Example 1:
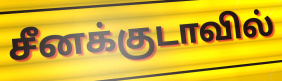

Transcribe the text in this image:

சீனக்குடாவில்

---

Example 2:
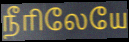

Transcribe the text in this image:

நீரிலேயே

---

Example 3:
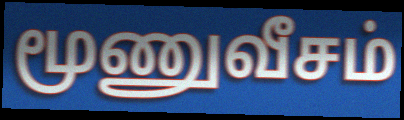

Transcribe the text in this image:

மூணுவீசம்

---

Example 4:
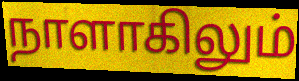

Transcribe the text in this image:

நாளாகிலும்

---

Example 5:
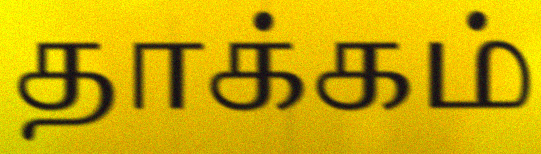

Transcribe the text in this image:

தாக்கம்